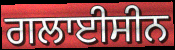
ਗਲਾਈਸੀਨ